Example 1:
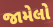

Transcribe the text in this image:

જામેલો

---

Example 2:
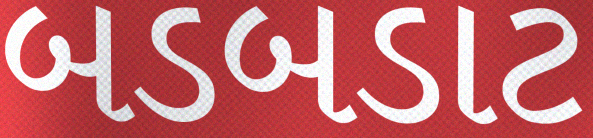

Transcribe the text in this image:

બડબડાટ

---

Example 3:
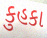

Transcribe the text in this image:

કુહકા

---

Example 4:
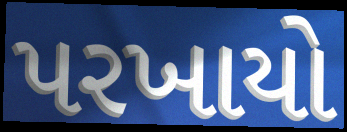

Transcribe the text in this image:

પરખાયો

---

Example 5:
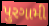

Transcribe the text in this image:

પુરગામી